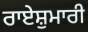
ਰਾਏਸ਼ੁਮਾਰੀ